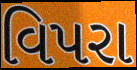
વિપરા